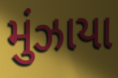
મુંઝાયા